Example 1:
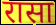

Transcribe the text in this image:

रासा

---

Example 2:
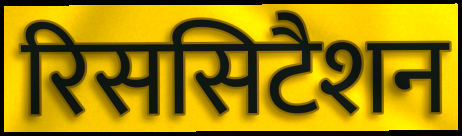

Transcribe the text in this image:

रिससिटैशन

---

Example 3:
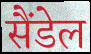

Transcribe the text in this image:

सैंडेल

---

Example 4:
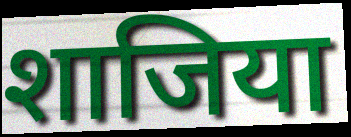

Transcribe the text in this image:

शाजिया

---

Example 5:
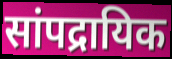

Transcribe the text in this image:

सांपद्रायिक